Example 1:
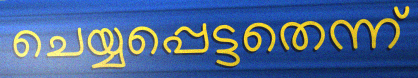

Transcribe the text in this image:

ചെയ്യപ്പെട്ടതെന്ന്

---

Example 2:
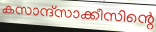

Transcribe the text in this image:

കസാന്ദ്സാക്കീസിന്റെ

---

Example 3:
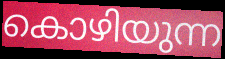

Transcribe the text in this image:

കൊഴിയുന്ന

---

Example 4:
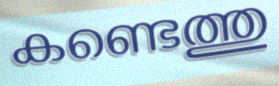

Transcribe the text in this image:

കണ്ടെത്തു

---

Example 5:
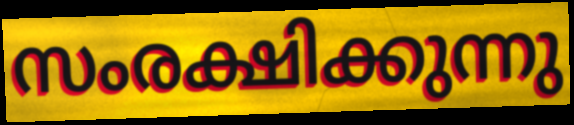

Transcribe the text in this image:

സംരക്ഷിക്കുന്നു